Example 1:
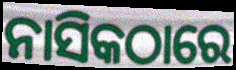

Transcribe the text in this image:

ନାସିକଠାରେ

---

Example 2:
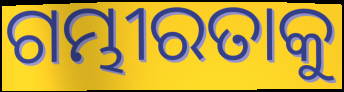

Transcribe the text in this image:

ଗମ୍ଭୀରତାକୁ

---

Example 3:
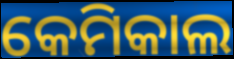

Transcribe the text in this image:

କେମିକାଲ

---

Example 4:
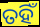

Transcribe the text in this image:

ତହିଁ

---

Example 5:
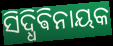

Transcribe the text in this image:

ସିଦ୍ଧିଵିନାୟକ